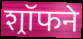
श्रॉफने